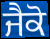
ਜੈਕੋ